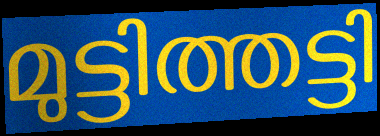
മുട്ടിത്തട്ടി